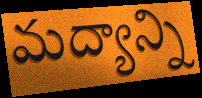
మద్యాన్ని